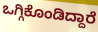
ಒಗ್ಗಿಕೊಂಡಿದ್ದಾರೆ